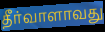
தீர்வாளாவது